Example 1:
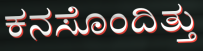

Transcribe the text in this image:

ಕನಸೊಂದಿತ್ತು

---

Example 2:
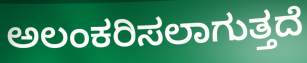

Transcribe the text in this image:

ಅಲಂಕರಿಸಲಾಗುತ್ತದೆ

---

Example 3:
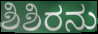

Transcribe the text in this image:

ಶಿಶಿರನು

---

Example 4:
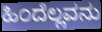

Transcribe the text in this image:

ಹಿಂದೆಲ್ಲವನು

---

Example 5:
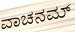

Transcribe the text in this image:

ವಾಚನಮ್